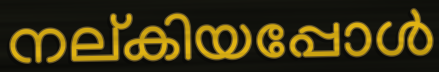
നല്കിയപ്പോൾ